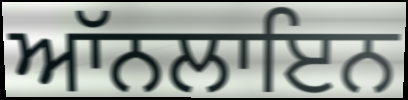
ਆੱਨਲਾਇਨ